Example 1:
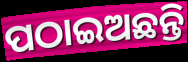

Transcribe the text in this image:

ପଠାଇଅଛନ୍ତି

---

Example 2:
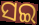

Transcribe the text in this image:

ସଇ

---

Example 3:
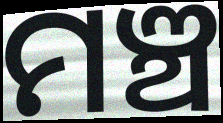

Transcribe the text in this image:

ମଞ୍ଚ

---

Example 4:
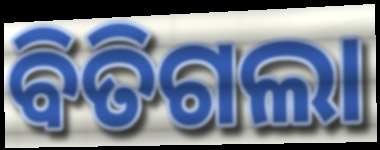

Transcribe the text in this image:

ବିତିଗଲା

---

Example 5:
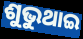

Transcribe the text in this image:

ଶୁଭୁଥାଇ